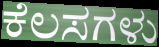
ಕೆಲಸಗಳು